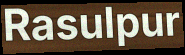
Rasulpur